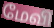
மேவி